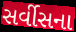
સર્વીસના